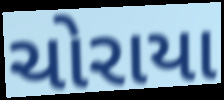
ચોરાયા